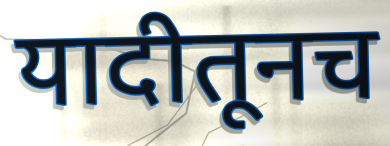
यादीतूनच